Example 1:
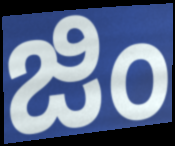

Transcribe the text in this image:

జిం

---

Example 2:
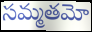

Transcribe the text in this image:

సమ్మతమో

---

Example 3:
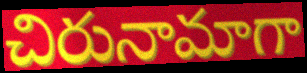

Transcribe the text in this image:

చిరునామాగా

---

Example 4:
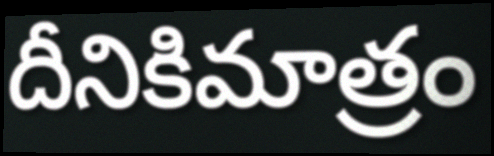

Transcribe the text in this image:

దీనికిమాత్రం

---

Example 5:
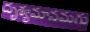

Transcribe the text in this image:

దృశ్యమానమగు